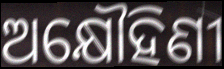
ଅକ୍ଷୌହିଣୀ